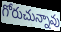
గోరుచున్నావు